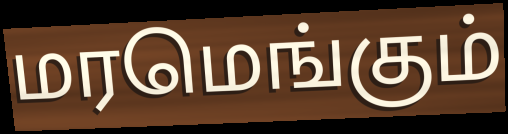
மரமெங்கும்